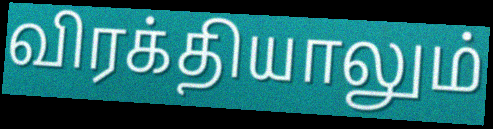
விரக்தியாலும்